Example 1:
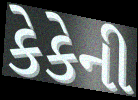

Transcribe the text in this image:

કેકેની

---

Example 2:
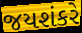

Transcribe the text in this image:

જયશંકરે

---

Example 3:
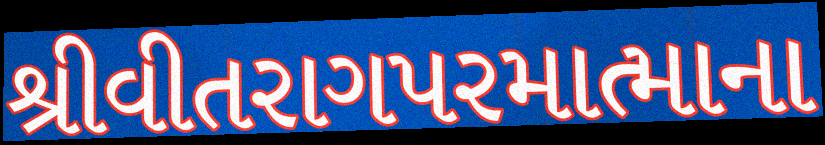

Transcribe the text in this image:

શ્રીવીતરાગપરમાત્માના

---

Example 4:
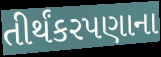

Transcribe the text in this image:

તીર્થંકરપણાના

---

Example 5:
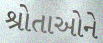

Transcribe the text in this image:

શ્રોતાઓને